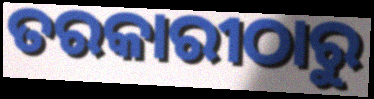
ତରକାରୀଠାରୁ